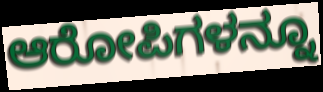
ಆರೋಪಿಗಳನ್ನೂ